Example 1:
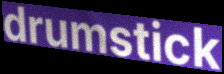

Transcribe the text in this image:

drumstick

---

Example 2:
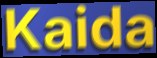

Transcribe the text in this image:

Kaida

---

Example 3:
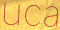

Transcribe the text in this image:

uca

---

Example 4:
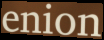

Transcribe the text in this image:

enion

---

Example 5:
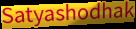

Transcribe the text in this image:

Satyashodhak